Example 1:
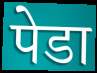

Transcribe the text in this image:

पेडा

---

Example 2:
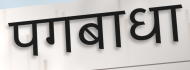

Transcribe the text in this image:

पगबाधा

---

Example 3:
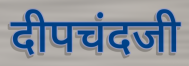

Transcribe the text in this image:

दीपचंदजी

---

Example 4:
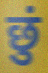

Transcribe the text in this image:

छुं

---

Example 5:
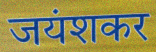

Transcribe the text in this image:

जयंशकर